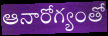
ఆనారోగ్యంతో